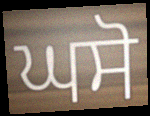
ਘਸੋ